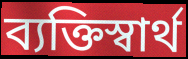
ব্যক্তিস্বার্থ